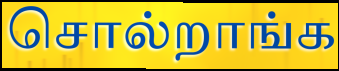
சொல்றாங்க